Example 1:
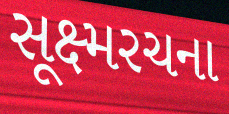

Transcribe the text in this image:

સૂક્ષ્મરચના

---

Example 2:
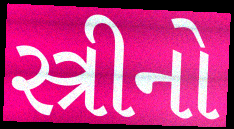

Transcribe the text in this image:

સ્ત્રીનો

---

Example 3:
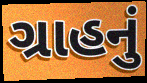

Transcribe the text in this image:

ગ્રાહનું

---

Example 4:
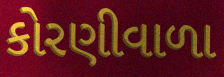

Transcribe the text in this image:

કોરણીવાળા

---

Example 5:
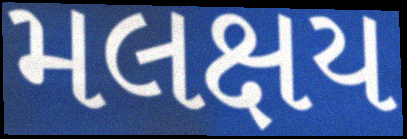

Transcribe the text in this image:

મલક્ષય